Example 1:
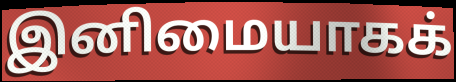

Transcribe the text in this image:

இனிமையாகக்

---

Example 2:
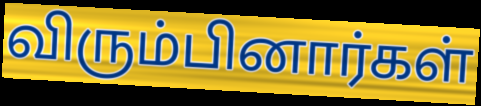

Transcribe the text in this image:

விரும்பினார்கள்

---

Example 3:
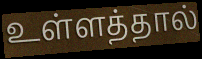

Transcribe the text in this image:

உள்ளத்தால்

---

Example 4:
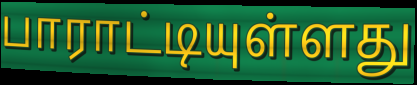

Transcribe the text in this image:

பாராட்டியுள்ளது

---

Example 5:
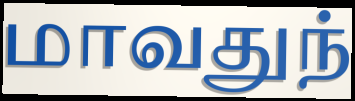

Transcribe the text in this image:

மாவதுந்